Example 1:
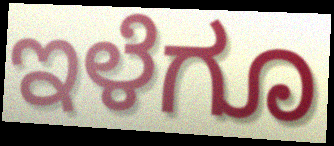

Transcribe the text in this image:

ಇಳೆಗೂ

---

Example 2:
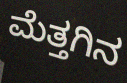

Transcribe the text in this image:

ಮೆತ್ತಗಿನ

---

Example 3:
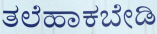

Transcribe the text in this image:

ತಲೆಹಾಕಬೇಡಿ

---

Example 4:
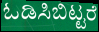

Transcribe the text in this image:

ಓಡಿಸಿಬಿಟ್ಟರೆ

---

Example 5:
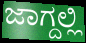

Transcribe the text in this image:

ಜಾಗ್ದಲ್ಲಿ